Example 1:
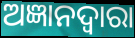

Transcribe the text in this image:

ଅଜ୍ଞାନଦ୍ଵାରା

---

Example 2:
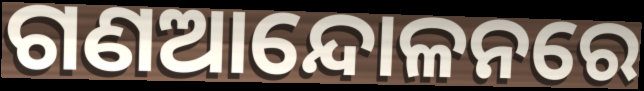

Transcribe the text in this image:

ଗଣଆନ୍ଦୋଳନରେ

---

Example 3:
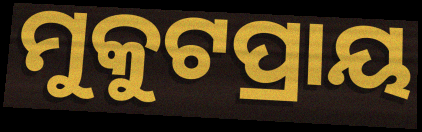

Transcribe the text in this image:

ମୁକୁଟପ୍ରାୟ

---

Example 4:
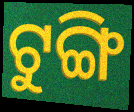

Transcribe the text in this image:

ଟୁଙ୍ଗି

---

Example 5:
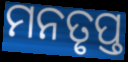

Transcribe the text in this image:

ମନତୃପ୍ତ